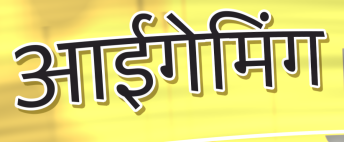
आईगेमिंग